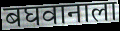
बघवानाला